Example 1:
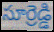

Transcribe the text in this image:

సూర్రెడ్డి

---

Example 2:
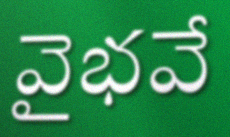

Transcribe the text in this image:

వైభవే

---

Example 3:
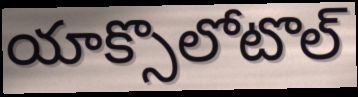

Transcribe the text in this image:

యాక్సొలోటొల్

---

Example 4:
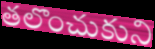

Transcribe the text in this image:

తలొంచుకుని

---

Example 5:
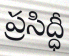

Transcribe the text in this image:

ప్రసిద్ధీ